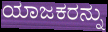
ಯಾಜಕರನ್ನು